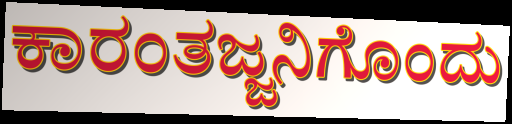
ಕಾರಂತಜ್ಜನಿಗೊಂದು